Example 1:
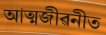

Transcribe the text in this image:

আত্মজীৱনীত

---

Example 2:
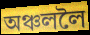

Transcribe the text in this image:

অঞ্চললৈ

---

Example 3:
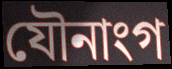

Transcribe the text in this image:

যৌনাংগ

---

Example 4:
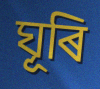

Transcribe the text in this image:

ঘূৰি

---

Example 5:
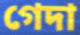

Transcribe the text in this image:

গেদা